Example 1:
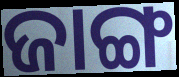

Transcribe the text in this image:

ଜାଙ୍ଗ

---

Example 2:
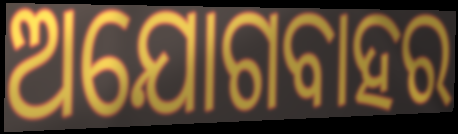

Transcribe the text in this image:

ଅଯୋଗବାହର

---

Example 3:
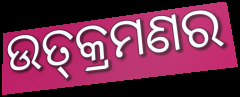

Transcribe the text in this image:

ଉତ୍‍କ୍ରମଣର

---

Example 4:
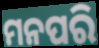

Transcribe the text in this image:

ମନପରି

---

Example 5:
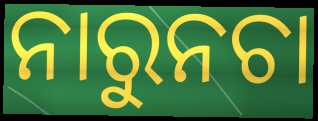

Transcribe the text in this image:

ନାରୁନଚା